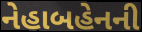
નેહાબહેનની